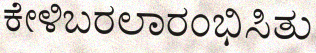
ಕೇಳಿಬರಲಾರಂಭಿಸಿತು